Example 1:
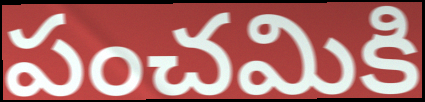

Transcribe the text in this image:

పంచమికి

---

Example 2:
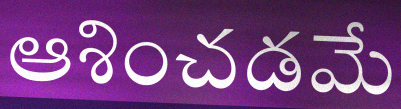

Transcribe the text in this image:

ఆశించడమే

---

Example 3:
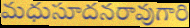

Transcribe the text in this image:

మధుసూదనరావుగారి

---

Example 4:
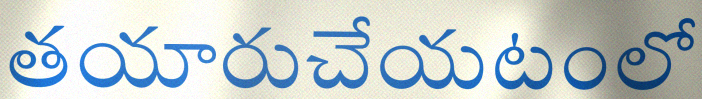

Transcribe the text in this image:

తయారుచేయటంలో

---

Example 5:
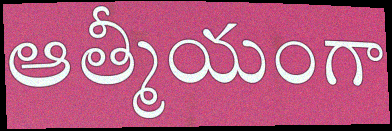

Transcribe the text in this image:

ఆత్మీయంగా